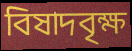
বিষাদবৃক্ষ